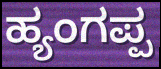
ಹ್ಯಂಗಪ್ಪ